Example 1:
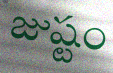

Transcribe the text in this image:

జుష్టం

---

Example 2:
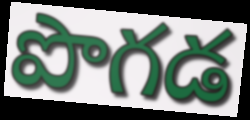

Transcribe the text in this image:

పొగడ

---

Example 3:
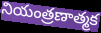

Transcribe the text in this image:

నియంత్రణాత్మక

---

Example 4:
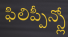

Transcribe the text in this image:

ఫిలిప్పీన్స్లో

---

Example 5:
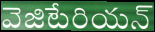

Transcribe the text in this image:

వెజిటేరియన్